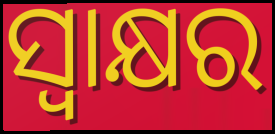
ସ୍ଵାକ୍ଷର